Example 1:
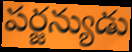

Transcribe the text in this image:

పర్జన్యుడు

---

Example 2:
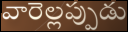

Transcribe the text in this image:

వారెల్లప్పుడు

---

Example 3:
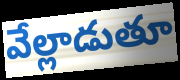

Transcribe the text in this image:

వేల్లాడుతూ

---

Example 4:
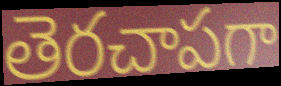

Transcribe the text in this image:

తెరచాపగా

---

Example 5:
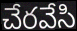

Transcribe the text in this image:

చేరవేసి